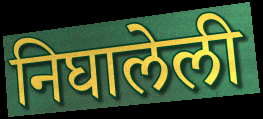
निघालेली